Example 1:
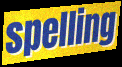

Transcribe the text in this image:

spelling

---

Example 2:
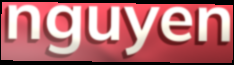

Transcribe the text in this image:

nguyen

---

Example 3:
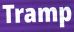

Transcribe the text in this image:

Tramp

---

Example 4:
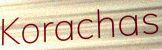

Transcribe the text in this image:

Korachas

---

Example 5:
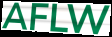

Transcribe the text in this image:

AFLW